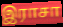
இராசா